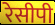
रेसीपी